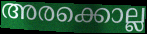
അരക്കൊല്ല